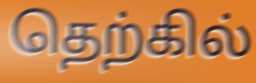
தெற்கில்